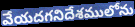
వేయదగనిదేశములోను